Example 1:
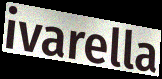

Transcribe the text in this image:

ivarella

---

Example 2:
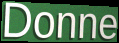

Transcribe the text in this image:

Donne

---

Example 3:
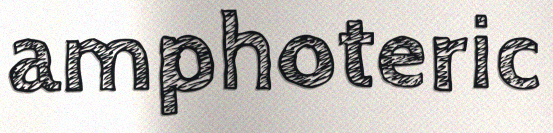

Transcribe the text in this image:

amphoteric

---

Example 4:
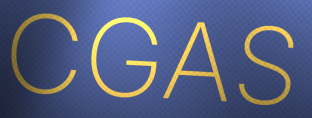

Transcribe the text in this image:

CGAS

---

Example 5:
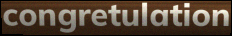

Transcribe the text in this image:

congretulation